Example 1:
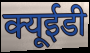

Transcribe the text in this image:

क्यूईडी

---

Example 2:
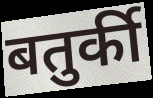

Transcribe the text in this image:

बतुर्की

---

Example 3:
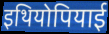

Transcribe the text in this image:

इथियोपियाई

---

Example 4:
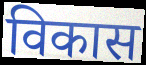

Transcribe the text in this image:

विकास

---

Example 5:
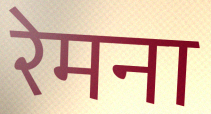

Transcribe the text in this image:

रेमना